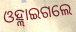
ଓହ୍ଲାଇଗଲେ